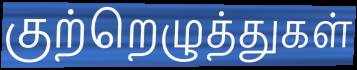
குற்றெழுத்துகள்